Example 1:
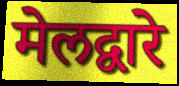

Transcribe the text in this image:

मेलद्वारे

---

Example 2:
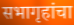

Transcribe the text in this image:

सभागृहांचा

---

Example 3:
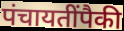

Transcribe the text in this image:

पंचायतींपैकी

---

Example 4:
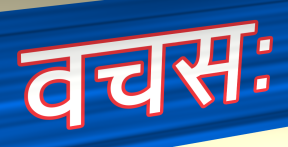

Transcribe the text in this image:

वचसः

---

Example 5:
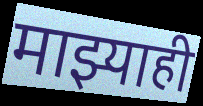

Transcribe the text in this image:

माझ्याही